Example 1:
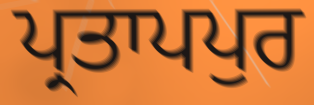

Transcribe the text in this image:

ਪ੍ਰਤਾਪਪੁਰ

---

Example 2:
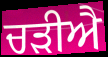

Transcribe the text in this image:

ਚੜੀਐ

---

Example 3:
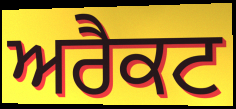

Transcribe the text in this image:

ਅਰੈਕਟ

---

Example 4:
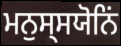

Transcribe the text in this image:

ਮਨੁਸ੍ਸਯੋਨਿਂ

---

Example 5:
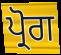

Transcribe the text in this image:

ਪ੍ਰੋਗ